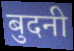
बुदनी